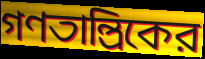
গণতান্ত্রিকের